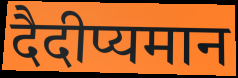
दैदीप्यमान